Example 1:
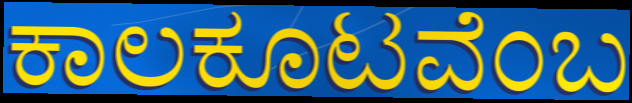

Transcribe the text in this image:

ಕಾಲಕೂಟವೆಂಬ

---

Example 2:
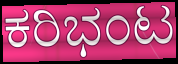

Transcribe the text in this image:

ಕರಿಭಂಟ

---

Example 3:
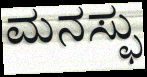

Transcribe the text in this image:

ಮನಸ್ಫು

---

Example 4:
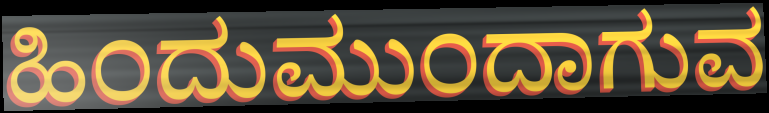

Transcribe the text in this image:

ಹಿಂದುಮುಂದಾಗುವ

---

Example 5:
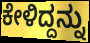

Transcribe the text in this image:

ಕೇಳಿದ್ದನ್ನು